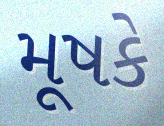
મૂષકે